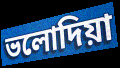
ভলোদিয়া